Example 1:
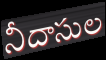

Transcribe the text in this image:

నీదాసుల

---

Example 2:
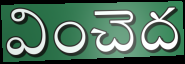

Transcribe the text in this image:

వించెద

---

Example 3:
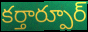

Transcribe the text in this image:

కర్తార్పూర్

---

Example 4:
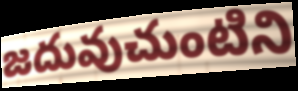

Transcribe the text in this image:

జదువుచుంటిని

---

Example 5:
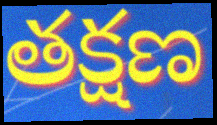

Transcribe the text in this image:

తక్షణ